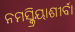
ନମସ୍କ୍ରିୟାଶୀର୍ବା